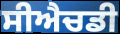
ਸੀਐਚਡੀ